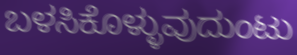
ಬಳಸಿಕೊಳ್ಳುವುದುಂಟು